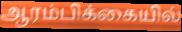
ஆரம்பிக்கையில்